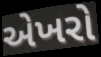
એખરો